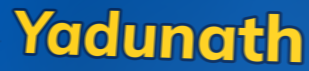
Yadunath